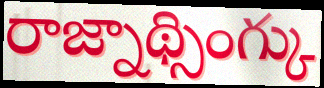
రాజ్నాథ్సింగ్కు